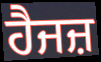
ਹੈਜਜ਼